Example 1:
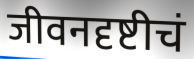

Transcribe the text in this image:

जीवनदृष्टीचं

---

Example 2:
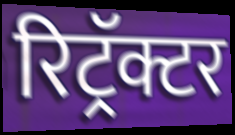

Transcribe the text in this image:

रिट्रॅक्टर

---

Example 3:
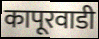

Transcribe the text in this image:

कापूरवाडी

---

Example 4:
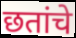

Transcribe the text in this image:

छतांचे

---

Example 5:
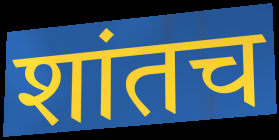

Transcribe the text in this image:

शांतच